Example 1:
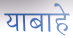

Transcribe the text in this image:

याबाहे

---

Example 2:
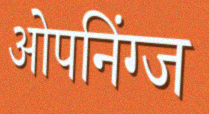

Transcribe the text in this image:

ओपनिंग्ज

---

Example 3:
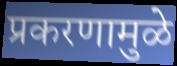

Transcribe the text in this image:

प्रकरणामुळे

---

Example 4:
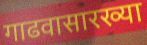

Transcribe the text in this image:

गाढवासारख्या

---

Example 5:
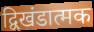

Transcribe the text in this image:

द्विखंडात्मक